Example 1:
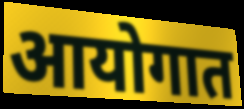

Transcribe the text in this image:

आयोगात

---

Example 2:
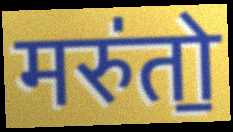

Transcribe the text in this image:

मरु॑तो॒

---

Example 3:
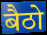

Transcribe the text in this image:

बैठो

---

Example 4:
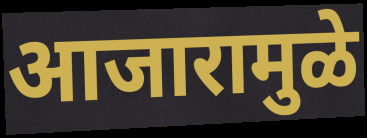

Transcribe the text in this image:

आजारामुळे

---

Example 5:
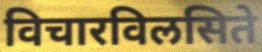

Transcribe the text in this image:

विचारविलसिते